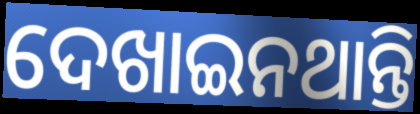
ଦେଖାଇନଥାନ୍ତି